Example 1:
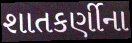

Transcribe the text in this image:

શાતકર્ણીના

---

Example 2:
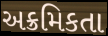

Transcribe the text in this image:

અક્રમિકતા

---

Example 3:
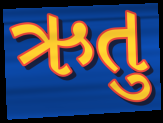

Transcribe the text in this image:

ઋતુ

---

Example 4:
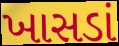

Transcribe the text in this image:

ખાસડાં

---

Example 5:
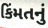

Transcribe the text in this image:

કિંમતનું